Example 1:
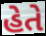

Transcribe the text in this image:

હેતે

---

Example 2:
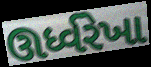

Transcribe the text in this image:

ઊર્ધ્વરેખા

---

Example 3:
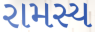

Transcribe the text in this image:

રામસ્ય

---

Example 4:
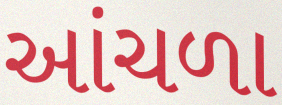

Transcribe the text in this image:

આંચળા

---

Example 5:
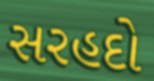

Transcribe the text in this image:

સરહદો